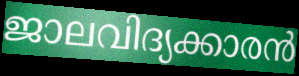
ജാലവിദ്യക്കാരൻ